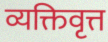
व्यक्तिवृत्त